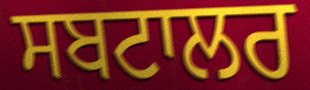
ਸਬਟਾਲਰ